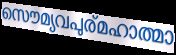
സൌമ്യവപുര്മഹാത്മാ